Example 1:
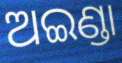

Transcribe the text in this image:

ଅଇଣ୍ଡା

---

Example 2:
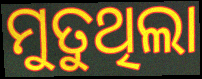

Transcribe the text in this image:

ମୁତୁଥିଲା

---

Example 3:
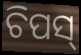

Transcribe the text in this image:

ଚିପସ୍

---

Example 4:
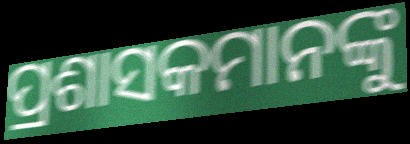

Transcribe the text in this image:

ପ୍ରଶାସକମାନଙ୍କୁ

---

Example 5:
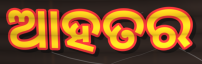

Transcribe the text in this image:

ଆହତର